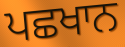
ਪਛਖਾਨ